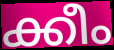
ക്കീം